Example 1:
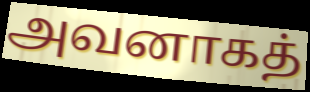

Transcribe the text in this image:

அவனாகத்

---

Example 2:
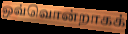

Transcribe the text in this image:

ஒவ்வொன்றாகக்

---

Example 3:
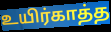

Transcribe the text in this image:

உயிர்காத்த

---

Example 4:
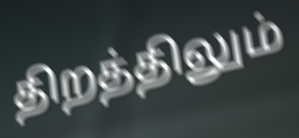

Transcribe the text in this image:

திறத்திலும்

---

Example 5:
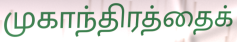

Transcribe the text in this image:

முகாந்திரத்தைக்